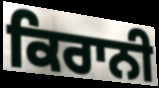
ਕਿਰਾਨੀ